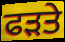
ਫੜਤੇ